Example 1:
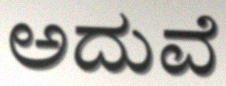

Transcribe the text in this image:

ಅದುವೆ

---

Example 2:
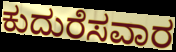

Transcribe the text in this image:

ಕುದುರೆಸವಾರ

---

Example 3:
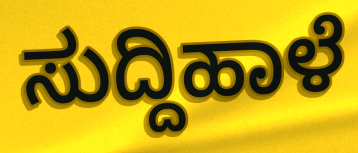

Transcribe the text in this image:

ಸುದ್ದಿಹಾಳೆ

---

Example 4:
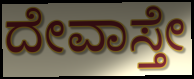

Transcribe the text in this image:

ದೇವಾಸ್ತೇ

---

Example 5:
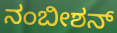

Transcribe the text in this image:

ನಂಬೀಶನ್